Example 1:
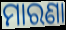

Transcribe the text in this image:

ମାରଣା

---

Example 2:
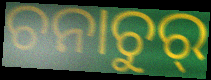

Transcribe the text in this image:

ଚନାଚୁର୍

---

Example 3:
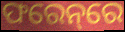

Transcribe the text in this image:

ଫରେନ୍‌ରେ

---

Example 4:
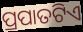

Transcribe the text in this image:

ପ୍ରପାତଟିଏ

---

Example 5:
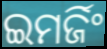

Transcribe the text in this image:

ଇମର୍ଜିଂ